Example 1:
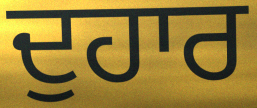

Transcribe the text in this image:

ਦੁਹਾਰ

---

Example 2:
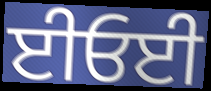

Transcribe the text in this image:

ਈਓਈ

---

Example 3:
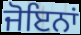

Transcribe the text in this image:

ਜੋਇਨਾਂ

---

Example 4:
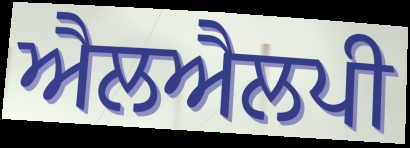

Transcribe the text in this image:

ਐਲਐਲਪੀ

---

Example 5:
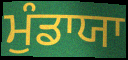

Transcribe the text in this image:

ਮੁੰਡਾਯਾ